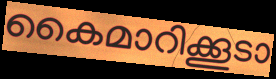
കൈമാറിക്കൂടാ